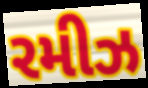
રમીઝ